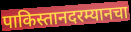
पाकिस्तानदरम्यानचा